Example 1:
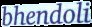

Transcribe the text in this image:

bhendoli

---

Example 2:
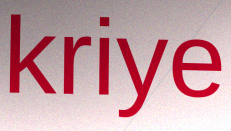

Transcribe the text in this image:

kriye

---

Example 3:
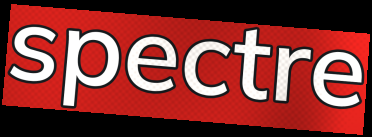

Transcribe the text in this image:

spectre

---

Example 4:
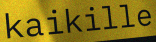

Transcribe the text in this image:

kaikille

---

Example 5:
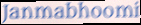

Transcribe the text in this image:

Janmabhoomi